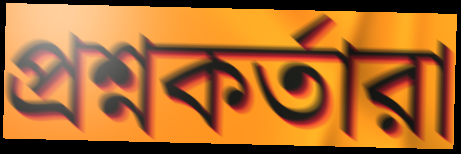
প্রশ্নকর্তারা